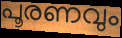
പൂരണവും